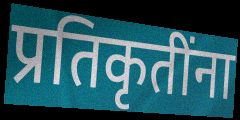
प्रतिकृतींना